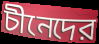
চীনেদের